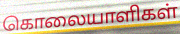
கொலையாளிகள்